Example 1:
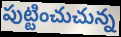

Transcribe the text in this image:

పుట్టించుచున్న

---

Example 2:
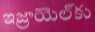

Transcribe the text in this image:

ఇజ్రాయెల్‌కు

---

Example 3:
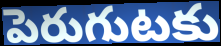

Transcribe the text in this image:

పెరుగుటకు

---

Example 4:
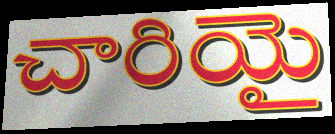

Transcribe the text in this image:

చారియై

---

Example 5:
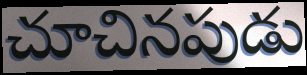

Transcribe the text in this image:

చూచినపుడు